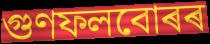
গুণফলবোৰৰ